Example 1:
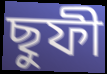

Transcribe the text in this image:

ছুফী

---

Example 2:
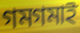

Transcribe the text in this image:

গমগমাই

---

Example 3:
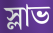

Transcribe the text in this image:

স্লাভ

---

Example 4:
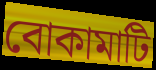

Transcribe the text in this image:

বোকামাটি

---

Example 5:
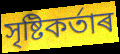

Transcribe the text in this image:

সৃষ্টিকৰ্তাৰ